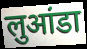
लुआंडा